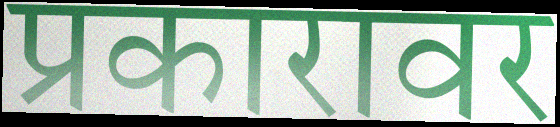
प्रकारावर